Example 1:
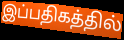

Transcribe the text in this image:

இப்பதிகத்தில்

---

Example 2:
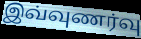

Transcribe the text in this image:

இவ்வுணர்வு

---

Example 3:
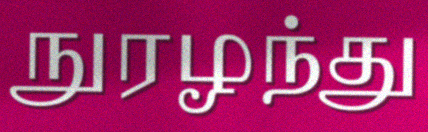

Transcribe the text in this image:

நுரழந்து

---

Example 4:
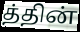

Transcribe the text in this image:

த்தின்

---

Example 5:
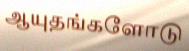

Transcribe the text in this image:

ஆயுதங்களோடு